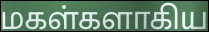
மகள்களாகிய